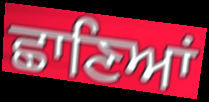
ਛਾਣਿਆਂ